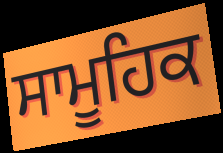
ਸਾਮੂਹਿਕ